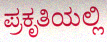
ಪ್ರಕೃತಿಯಲ್ಲಿ